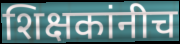
शिक्षकांनीच